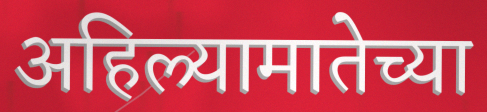
अहिल्यामातेच्या